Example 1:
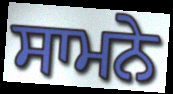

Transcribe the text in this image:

ਸਾਮਨੇ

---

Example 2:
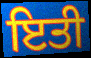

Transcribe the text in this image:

ਇਤੀ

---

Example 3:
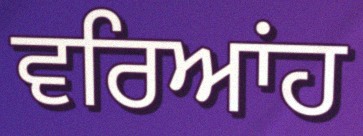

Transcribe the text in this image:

ਵਰਿਆਂਹ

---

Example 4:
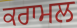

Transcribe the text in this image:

ਕਰਾਮਲ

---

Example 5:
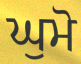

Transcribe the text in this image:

ਘੁਮੋ